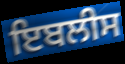
ਇਬਲੀਸ